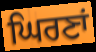
ਘਿਰਣਾਂ